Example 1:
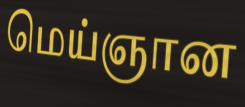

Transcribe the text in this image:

மெய்ஞான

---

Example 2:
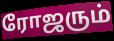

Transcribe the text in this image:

ரோஜரும்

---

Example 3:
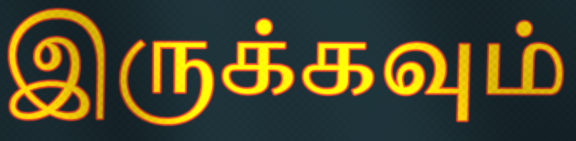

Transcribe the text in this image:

இருக்கவும்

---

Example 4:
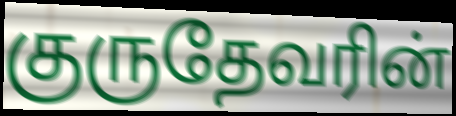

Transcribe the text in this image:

குருதேவரின்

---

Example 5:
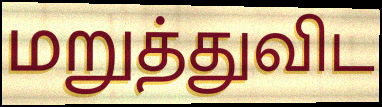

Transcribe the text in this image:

மறுத்துவிட